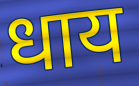
धाय